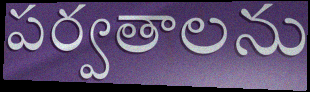
పర్వతాలను